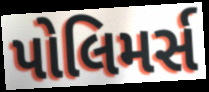
પોલિમર્સ